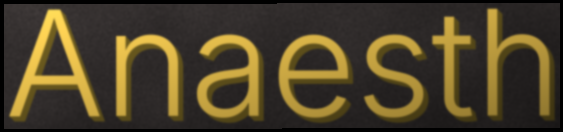
Anaesth